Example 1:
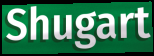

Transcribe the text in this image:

Shugart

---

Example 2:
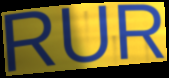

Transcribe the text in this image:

RUR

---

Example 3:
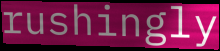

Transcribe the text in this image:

rushingly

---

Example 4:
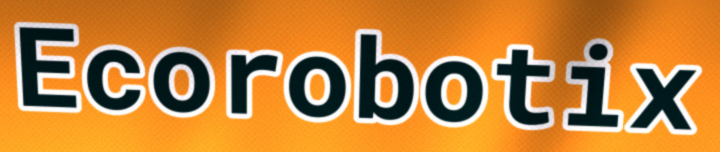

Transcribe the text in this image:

Ecorobotix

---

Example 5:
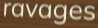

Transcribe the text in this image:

ravages